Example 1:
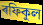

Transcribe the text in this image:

ৰফিকুল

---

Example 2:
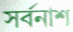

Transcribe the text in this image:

সৰ্বনাশ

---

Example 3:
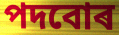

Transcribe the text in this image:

পদবোৰ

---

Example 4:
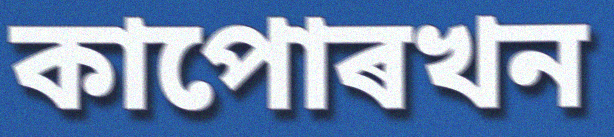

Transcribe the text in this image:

কাপোৰখন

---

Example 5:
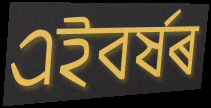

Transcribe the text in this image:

এইবৰ্ষৰ